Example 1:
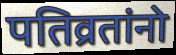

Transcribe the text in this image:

पतिव्रतांनो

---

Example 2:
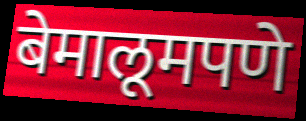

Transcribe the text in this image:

बेमालूमपणे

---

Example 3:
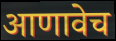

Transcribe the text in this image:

आणावेच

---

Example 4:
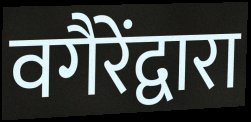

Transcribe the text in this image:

वगैरेंद्वारा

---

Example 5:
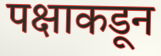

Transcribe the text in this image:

पक्षाकडून